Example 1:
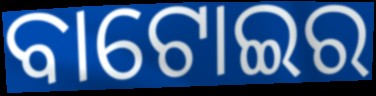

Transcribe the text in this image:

ବାଟୋଇର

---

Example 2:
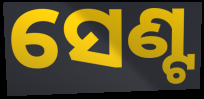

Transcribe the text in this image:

ସେଣ୍ଟ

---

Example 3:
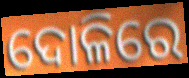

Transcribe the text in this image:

ଦୋଳିରେ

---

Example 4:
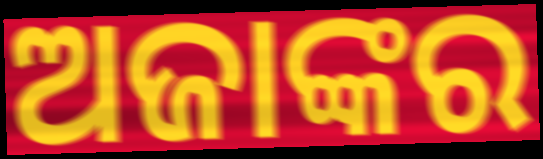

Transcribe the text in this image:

ଅଜାଙ୍କର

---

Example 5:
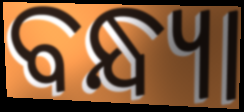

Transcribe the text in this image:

ବନ୍ଧ୍ୟା